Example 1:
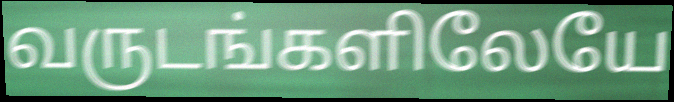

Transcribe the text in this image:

வருடங்களிலேயே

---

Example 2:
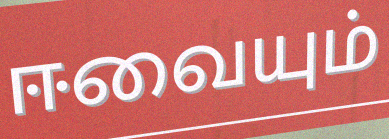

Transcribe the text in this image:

ஈவையும்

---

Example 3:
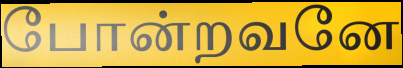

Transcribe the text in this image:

போன்றவனே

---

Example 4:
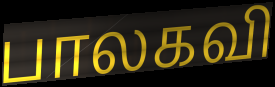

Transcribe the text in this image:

பாலகவி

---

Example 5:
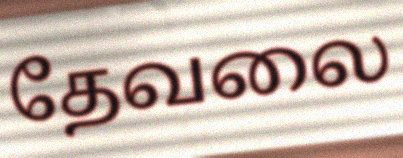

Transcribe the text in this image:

தேவலை